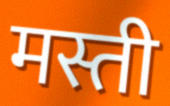
मस्ती